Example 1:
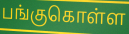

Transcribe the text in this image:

பங்குகொள்ள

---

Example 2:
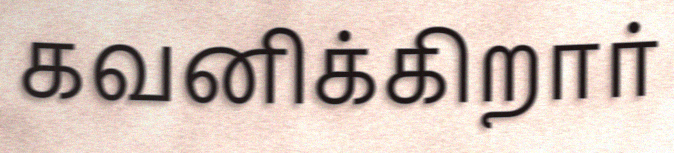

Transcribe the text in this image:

கவனிக்கிறார்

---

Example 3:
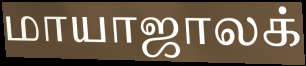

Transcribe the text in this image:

மாயாஜாலக்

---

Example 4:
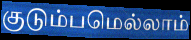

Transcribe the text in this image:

குடும்பமெல்லாம்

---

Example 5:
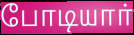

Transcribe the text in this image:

போடியார்